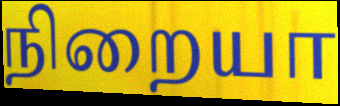
நிறையா